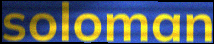
soloman